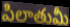
పిలాతుమీ